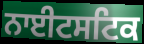
ਨਾਈਟਸਟਿਕ